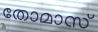
തോമാസ്